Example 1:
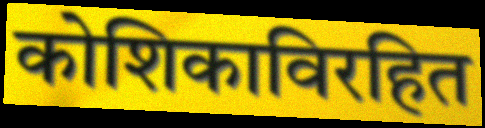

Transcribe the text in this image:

कोशिकाविरहित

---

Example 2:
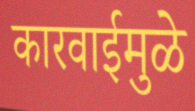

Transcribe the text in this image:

कारवाईमुळे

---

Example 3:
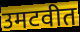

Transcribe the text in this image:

उमटवीत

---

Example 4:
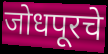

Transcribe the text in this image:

जोधपूरचे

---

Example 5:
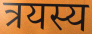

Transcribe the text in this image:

त्रयस्य